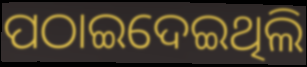
ପଠାଇଦେଇଥିଲି